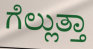
ಗೆಲ್ಲುತ್ತಾ